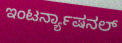
ಇಂಟರ್ನ್ಯಾಷನಲ್